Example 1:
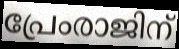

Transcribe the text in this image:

പ്രേംരാജിന്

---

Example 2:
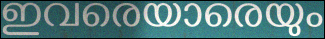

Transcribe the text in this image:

ഇവരെയാരെയും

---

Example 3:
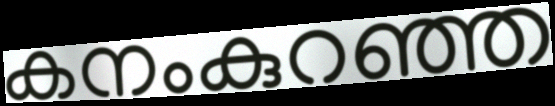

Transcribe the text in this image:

കനംകുറഞ്ഞ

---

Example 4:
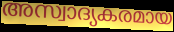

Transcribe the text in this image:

അസ്വാദ്യകരമായ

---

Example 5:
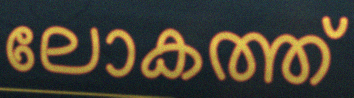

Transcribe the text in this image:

ലോകത്ത്